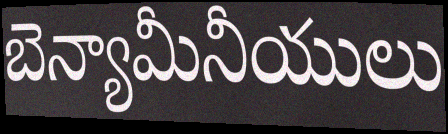
బెన్యామీనీయులు